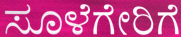
ಸೂಳೆಗೇರಿಗೆ